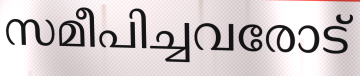
സമീപിച്ചവരോട്